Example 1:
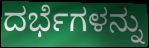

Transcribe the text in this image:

ದರ್ಭೆಗಳನ್ನು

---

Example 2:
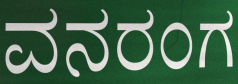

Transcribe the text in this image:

ವನರಂಗ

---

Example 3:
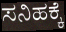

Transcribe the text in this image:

ಸನಿಹಕ್ಕೆ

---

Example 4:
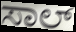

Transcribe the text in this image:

ಸಾಲ್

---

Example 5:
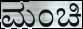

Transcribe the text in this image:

ಮಂಚಿ